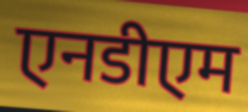
एनडीएम